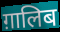
ग़ालिब